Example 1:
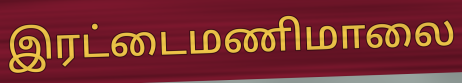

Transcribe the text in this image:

இரட்டைமணிமாலை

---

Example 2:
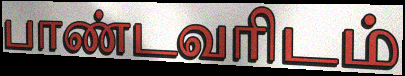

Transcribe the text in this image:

பாண்டவரிடம்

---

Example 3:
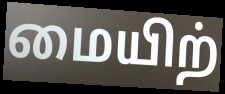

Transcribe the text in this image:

மையிற்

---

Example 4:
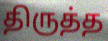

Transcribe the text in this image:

திருத்த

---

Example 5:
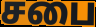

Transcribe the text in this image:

சபை